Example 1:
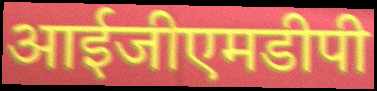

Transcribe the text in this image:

आईजीएमडीपी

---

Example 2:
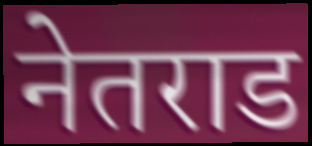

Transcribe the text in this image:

नेतराड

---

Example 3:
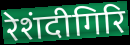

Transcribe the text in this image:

रेशंदीगिरि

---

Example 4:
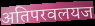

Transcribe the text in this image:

अतिपरवलयज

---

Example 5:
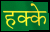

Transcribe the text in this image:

हक्के